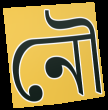
নৌ